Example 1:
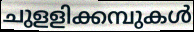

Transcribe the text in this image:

ചുളളിക്കമ്പുകൾ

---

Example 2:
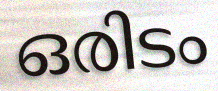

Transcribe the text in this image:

ഒരിടം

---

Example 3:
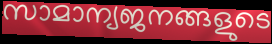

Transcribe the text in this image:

സാമാന്യജനങ്ങളുടെ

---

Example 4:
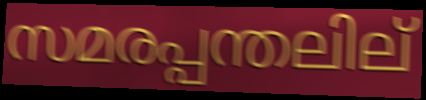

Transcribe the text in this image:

സമരപ്പന്തലില്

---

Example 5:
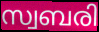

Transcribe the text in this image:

സ്വബരി